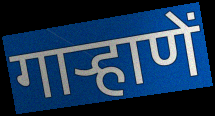
गार्‍हाणें